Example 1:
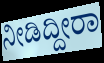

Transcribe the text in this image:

ನೀಡಿದ್ದೀರಾ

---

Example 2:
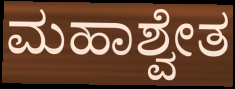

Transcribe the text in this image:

ಮಹಾಶ್ವೇತ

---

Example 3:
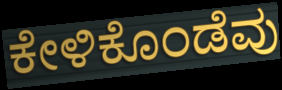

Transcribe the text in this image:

ಕೇಳಿಕೊಂಡೆವು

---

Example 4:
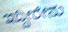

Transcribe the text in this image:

ಇದ್ದೀರೇನು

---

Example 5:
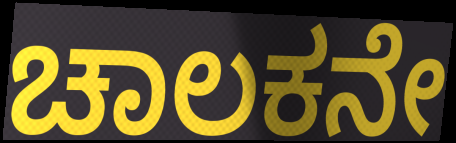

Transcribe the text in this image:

ಚಾಲಕನೇ